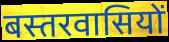
बस्तरवासियों